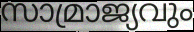
സാമ്രാജ്യവും